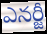
ఎనర్జీ